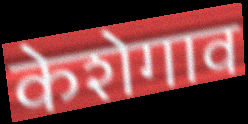
केशेगाव